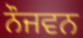
ਨੌਜਵਨ